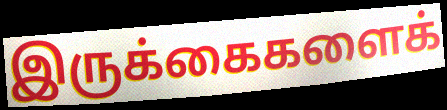
இருக்கைகளைக்